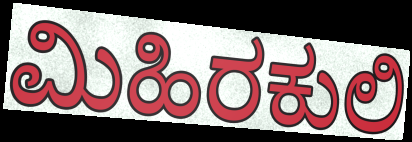
ಮಿಹಿರಕುಲಿ